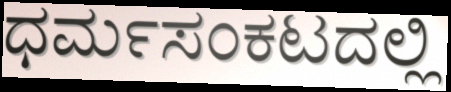
ಧರ್ಮಸಂಕಟದಲ್ಲಿ